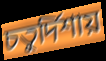
চতুর্দিশায়